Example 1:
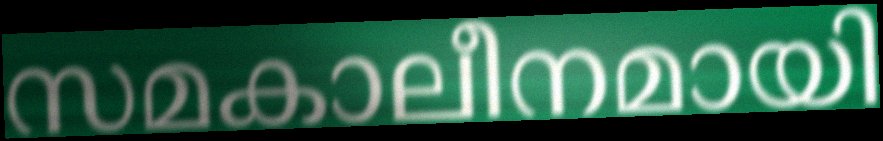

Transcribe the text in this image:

സമകാലീനമായി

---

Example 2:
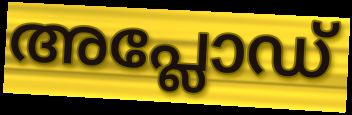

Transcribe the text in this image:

അപ്ലോഡ്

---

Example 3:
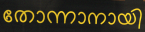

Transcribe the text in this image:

തോന്നാനായി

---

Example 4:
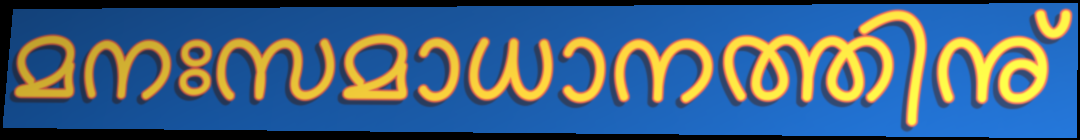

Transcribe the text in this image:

മനഃസമാധാനത്തിനു്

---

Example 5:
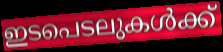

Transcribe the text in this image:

ഇടപെടലുകൾക്ക്